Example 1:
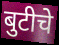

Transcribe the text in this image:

बुटीचे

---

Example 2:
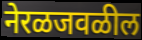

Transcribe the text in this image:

नेरळजवळील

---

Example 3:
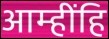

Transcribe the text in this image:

आम्हींहि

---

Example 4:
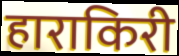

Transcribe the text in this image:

हाराकिरी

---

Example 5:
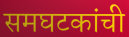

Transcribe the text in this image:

समघटकांची